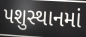
પશુસ્થાનમાં